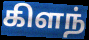
கிளந்